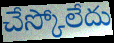
చేస్కోలేదు